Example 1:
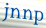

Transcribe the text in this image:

jnnp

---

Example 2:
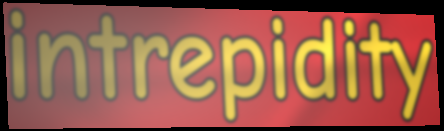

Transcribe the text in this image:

intrepidity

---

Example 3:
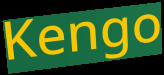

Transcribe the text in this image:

Kengo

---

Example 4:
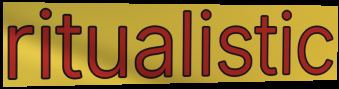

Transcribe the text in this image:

ritualistic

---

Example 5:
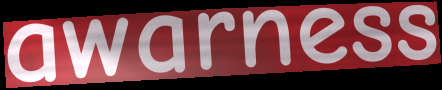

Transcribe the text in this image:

awarness